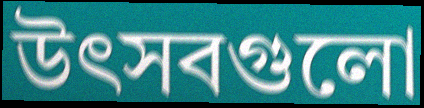
উৎসবগুলো